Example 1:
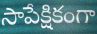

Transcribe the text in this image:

సాపేక్షికంగా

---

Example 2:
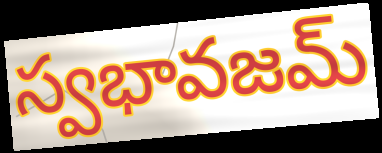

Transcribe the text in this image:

స్వభావజమ్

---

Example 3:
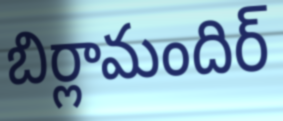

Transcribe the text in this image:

బిర్లామందిర్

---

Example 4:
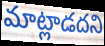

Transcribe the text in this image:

మాట్లాడదని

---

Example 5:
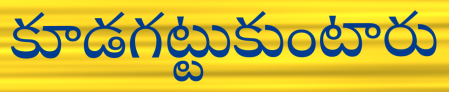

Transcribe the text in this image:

కూడగట్టుకుంటారు